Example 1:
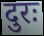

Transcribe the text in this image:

दुरः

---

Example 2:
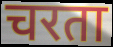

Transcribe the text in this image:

चरता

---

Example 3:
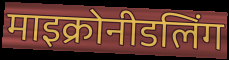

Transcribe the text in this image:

माइक्रोनीडलिंग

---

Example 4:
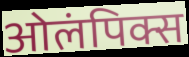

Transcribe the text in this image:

ओलंपिक्स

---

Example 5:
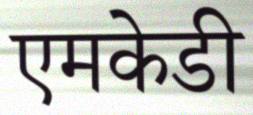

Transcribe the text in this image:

एमकेडी